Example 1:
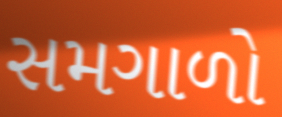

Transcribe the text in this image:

સમગાળો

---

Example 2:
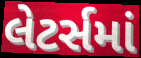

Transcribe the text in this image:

લેટર્સમાં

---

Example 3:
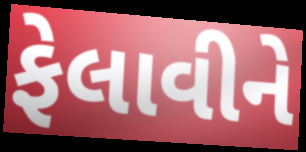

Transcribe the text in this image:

ફેલાવીને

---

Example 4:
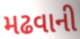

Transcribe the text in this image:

મઢવાની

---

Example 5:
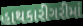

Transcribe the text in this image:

હાથકારીગરીમાં